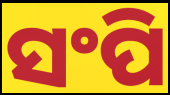
ସଂପି